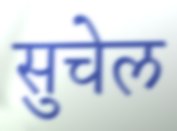
सुचेल